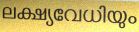
ലക്ഷ്യവേധിയും